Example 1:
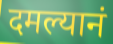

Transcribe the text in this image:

दमल्यानं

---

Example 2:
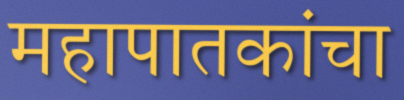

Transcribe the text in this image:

महापातकांचा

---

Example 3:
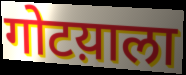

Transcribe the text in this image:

गोटय़ाला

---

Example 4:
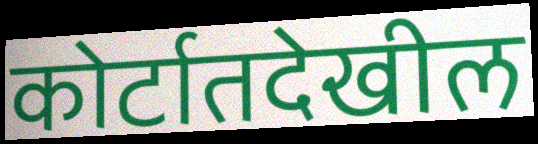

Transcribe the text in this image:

कोर्टातदेखील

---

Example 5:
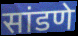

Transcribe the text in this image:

सांडणे